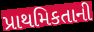
પ્રાથમિકતાની